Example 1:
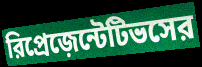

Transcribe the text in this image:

রিপ্রেজ়েন্টেটিভসের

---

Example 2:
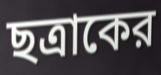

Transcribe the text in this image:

ছত্রাকের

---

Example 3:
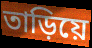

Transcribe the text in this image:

তাড়িয়ে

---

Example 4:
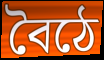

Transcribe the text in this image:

বৈঠে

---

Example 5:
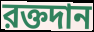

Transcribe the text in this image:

রক্তদান